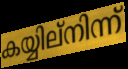
കയ്യില്നിന്ന്